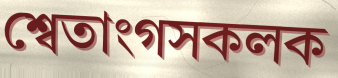
শ্বেতাংগসকলক